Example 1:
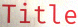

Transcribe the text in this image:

Title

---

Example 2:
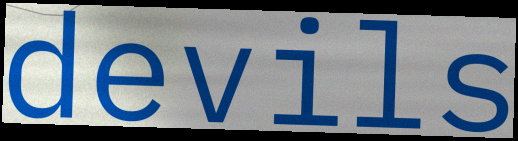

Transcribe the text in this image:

devils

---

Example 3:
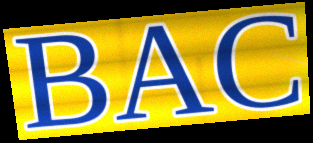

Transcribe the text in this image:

BAC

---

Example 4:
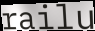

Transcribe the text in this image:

railu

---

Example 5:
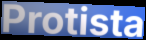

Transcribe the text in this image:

Protista